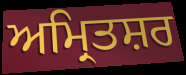
ਅਮ੍ਰਿਤਸ਼ਰ